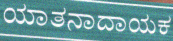
ಯಾತನಾದಾಯಕ